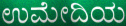
ಉಮೇದಿಯ